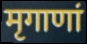
मृगाणां